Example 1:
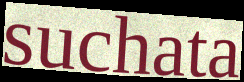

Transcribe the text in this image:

suchata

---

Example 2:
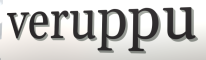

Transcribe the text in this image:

veruppu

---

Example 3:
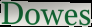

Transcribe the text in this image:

Dowes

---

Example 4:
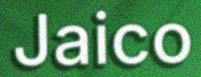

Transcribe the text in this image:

Jaico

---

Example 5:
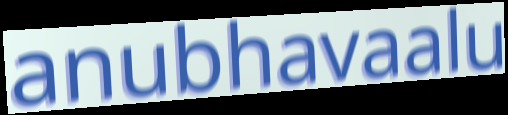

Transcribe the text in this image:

anubhavaalu